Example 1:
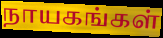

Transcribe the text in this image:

நாயகங்கள்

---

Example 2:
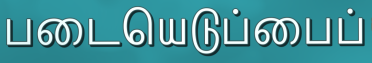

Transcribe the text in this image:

படையெடுப்பைப்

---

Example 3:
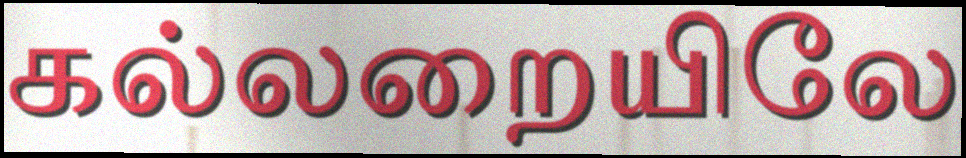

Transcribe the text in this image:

கல்லறையிலே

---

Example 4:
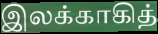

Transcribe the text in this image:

இலக்காகித்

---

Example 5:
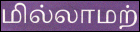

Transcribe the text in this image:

மில்லாமற்